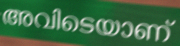
അവിടെയാണ്